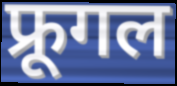
फ्रूगल